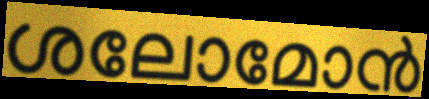
ശലോമോൻ